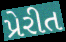
પ્રેરીત